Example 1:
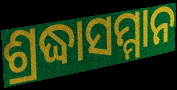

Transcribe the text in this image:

ଶ୍ରଦ୍ଧାସମ୍ମାନ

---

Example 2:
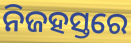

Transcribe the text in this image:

ନିଜହସ୍ତରେ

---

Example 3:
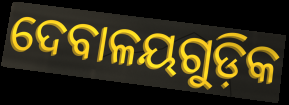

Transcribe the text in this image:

ଦେବାଳୟଗୁଡ଼ିକ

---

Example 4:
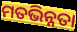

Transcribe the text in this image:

ମତଭିନ୍ନତା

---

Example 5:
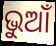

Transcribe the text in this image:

ଭୁଆଁ